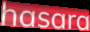
hasara